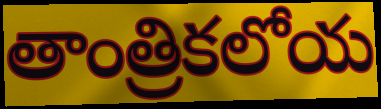
తాంత్రికలోయ